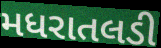
મધરાતલડી